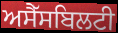
ਅਸੈੱਸਬਿਲਟੀ